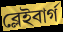
ব্লেইবার্গ